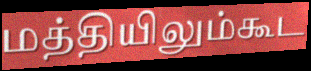
மத்தியிலும்கூட